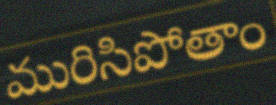
మురిసిపోతాం